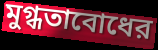
মুগ্ধতাবোধের